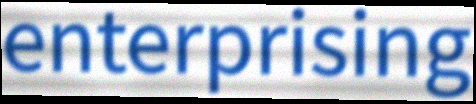
enterprising